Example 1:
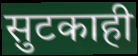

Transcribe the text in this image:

सुटकाही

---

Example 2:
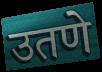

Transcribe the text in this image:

उतणे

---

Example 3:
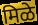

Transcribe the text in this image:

मिळे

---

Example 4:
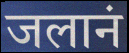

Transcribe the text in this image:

जलानं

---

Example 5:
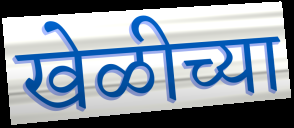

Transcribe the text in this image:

खेळीच्या